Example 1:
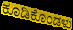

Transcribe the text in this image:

ಕೂಡಿಕೊಂಡಳು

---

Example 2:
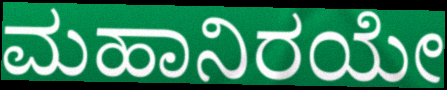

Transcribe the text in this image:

ಮಹಾನಿರಯೇ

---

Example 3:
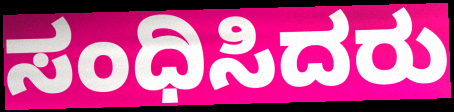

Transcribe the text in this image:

ಸಂಧಿಸಿದರು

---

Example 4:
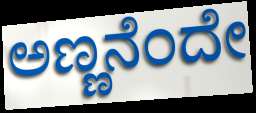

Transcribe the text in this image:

ಅಣ್ಣನೆಂದೇ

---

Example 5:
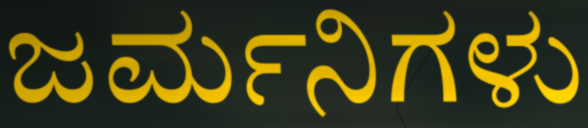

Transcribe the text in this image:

ಜರ್ಮನಿಗಳು